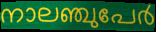
നാലഞ്ചുപേർ